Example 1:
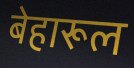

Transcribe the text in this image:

बेहारूल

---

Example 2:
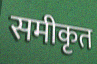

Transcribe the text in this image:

समीकृत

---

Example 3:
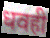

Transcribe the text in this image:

धवही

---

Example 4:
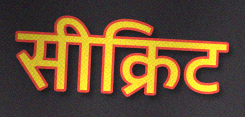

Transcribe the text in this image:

सीक्रिट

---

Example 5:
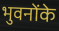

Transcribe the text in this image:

भुवनोंके